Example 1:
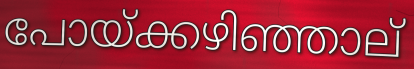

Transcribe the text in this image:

പോയ്ക്കഴിഞ്ഞാല്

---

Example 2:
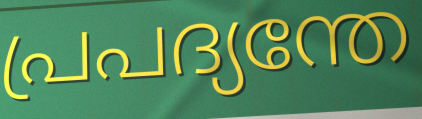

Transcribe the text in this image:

പ്രപദ്യന്തേ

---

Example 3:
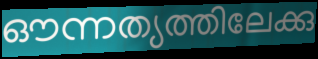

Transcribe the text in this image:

ഔന്നത്യത്തിലേക്കു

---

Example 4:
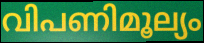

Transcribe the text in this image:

വിപണിമൂല്യം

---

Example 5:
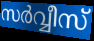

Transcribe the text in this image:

സർവ്വീസ്